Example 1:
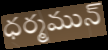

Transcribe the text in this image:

ధర్మమున్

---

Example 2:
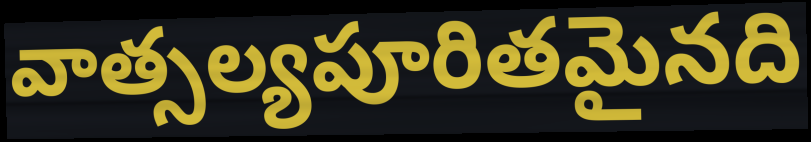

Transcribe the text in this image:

వాత్సల్యపూరితమైనది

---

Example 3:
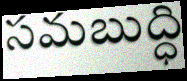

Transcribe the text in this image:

సమబుద్ధి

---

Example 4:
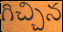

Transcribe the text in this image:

గిచ్చిన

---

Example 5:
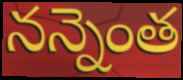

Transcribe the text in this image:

నన్నెంత